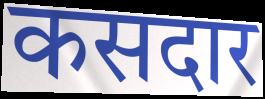
कसदार